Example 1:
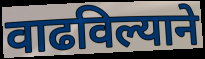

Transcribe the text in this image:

वाढविल्याने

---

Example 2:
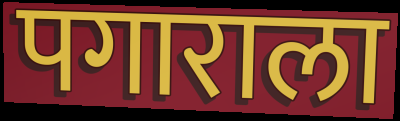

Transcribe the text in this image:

पगाराला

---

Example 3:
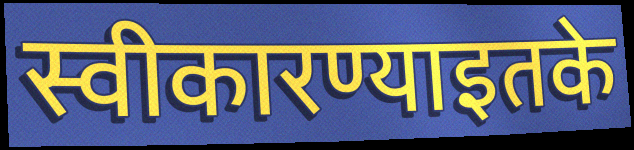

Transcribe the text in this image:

स्वीकारण्याइतके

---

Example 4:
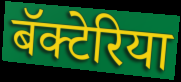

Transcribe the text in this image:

बॅक्टेरिया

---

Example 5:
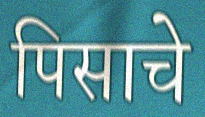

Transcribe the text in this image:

पिसाचे